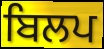
ਬਿਲਪ